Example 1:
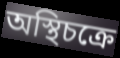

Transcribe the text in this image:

অস্থিচক্রে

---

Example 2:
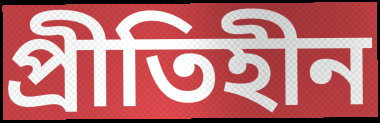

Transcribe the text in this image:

প্রীতিহীন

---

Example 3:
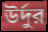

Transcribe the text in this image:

উর্দুর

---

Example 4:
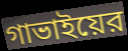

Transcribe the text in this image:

গাভাইয়ের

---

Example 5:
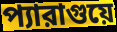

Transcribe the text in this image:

প্যারাগুয়ে